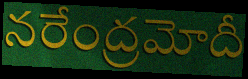
నరేంద్రమోదీ